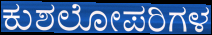
ಕುಶಲೋಪರಿಗಳ